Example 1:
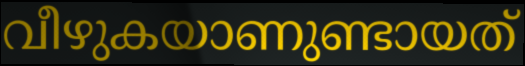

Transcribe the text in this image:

വീഴുകയാണുണ്ടായത്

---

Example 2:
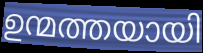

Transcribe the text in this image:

ഉന്മത്തയായി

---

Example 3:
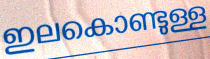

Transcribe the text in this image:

ഇലകൊണ്ടുള്ള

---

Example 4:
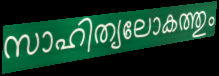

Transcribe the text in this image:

സാഹിത്യലോകത്തും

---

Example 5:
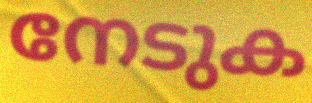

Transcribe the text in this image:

നേടുക